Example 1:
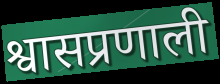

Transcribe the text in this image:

श्वासप्रणाली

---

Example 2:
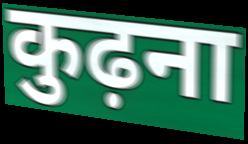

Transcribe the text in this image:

कुढ़ना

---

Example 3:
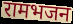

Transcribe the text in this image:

रामभजन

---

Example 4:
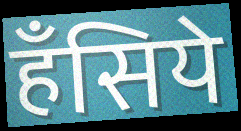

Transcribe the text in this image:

हँसिये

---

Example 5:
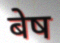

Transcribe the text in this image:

बेष